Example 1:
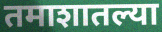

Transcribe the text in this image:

तमाशातल्या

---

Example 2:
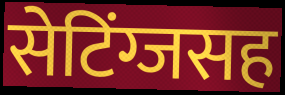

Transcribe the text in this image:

सेटिंग्जसह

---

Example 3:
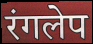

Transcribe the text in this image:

रंगलेप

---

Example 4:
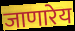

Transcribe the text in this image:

जाणारेय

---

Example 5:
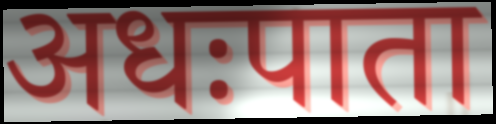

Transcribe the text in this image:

अधःपाता